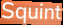
Squint